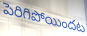
పెరిగిపోయిందట